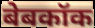
बेबकॉक